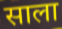
साला